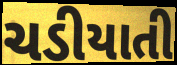
ચડીયાતી